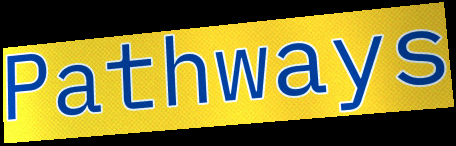
Pathways